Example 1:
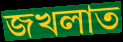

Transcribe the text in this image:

জখলাত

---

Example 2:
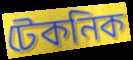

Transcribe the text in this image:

টেকনিক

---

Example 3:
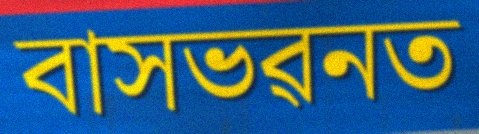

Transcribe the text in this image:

বাসভৱনত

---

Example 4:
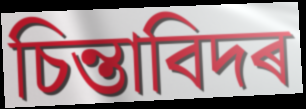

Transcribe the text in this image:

চিন্তাবিদৰ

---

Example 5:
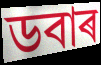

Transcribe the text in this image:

ডবাৰ